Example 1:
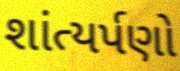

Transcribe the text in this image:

શાંત્યર્પણો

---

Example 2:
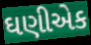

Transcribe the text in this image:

ઘણીએક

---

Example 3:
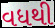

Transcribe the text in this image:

વધથી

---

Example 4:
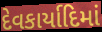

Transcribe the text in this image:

દેવકાર્યાદિમાં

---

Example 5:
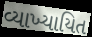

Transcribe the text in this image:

વ્યાખ્યાયિત